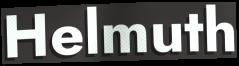
Helmuth